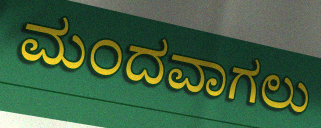
ಮಂದವಾಗಲು